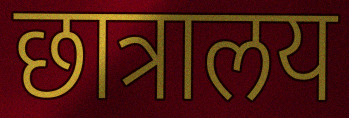
छात्रालय